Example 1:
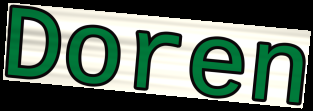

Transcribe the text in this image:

Doren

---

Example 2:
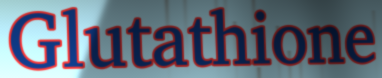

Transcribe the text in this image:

Glutathione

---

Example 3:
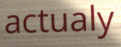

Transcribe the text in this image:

actualy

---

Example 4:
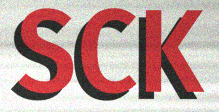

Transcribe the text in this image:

SCK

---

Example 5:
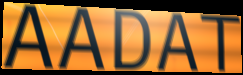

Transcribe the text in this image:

AADAT